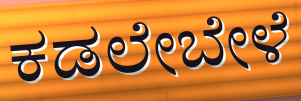
ಕಡಲೇಬೇಳೆ